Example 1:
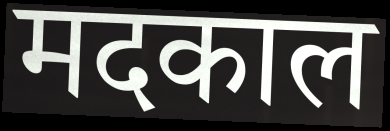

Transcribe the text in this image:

मदकाल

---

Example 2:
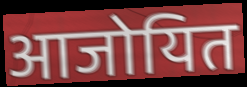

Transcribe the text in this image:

आजोयित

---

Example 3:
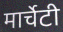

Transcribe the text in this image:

मार्चेटी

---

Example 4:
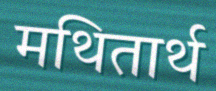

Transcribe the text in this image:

मथितार्थ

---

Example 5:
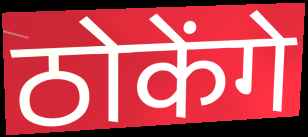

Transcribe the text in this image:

ठोकेंगे